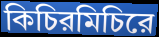
কিচিরমিচিরে